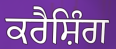
ਕਰੈਸ਼ਿੰਗ